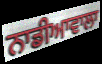
ਨਾਡੀਆਵਾਲਾ